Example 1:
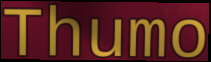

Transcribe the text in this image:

Thumo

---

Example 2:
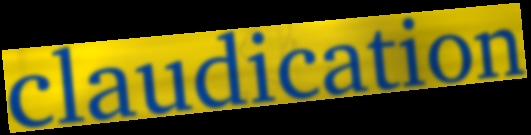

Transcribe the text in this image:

claudication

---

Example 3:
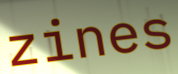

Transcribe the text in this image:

zines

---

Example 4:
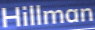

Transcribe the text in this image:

Hillman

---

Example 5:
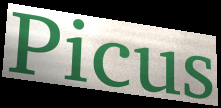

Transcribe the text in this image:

Picus